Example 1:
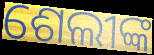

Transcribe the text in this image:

ଶେଲୀଙ୍କ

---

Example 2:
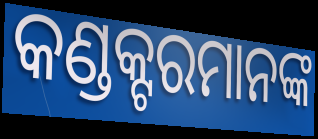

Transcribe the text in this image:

କଣ୍ଡକ୍ଟରମାନଙ୍କ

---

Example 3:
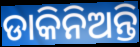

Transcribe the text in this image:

ଡାକିନିଅନ୍ତି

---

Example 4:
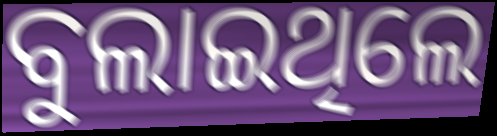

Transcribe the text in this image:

ବୁଲାଇଥିଲେ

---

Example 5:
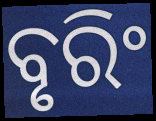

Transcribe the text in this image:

ବୃରିଂ